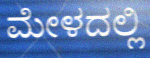
ಮೇಳದಲ್ಲಿ